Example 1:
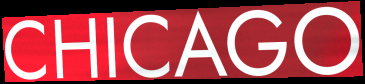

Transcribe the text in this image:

CHICAGO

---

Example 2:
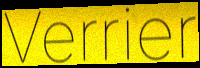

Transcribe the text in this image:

Verrier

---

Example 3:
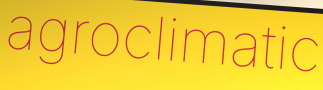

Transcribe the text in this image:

agroclimatic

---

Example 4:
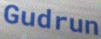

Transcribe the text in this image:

Gudrun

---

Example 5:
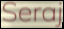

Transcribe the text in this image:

Seraj